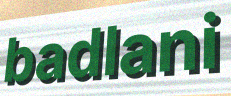
badlani